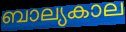
ബാല്യകാല